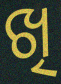
ଖି